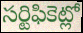
సర్టిఫికెట్లో